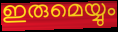
ഇരുമെയ്യും